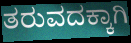
ತರುವದಕ್ಕಾಗಿ